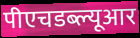
पीएचडब्ल्यूआर